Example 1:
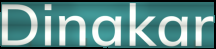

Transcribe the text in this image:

Dinakar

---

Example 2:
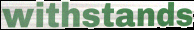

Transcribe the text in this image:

withstands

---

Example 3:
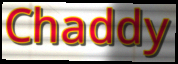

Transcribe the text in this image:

Chaddy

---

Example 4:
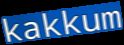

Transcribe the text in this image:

kakkum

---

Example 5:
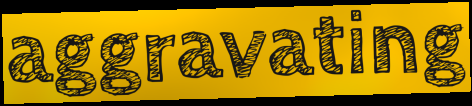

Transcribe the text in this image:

aggravating